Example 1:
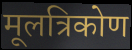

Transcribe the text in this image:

मूलत्रिकोण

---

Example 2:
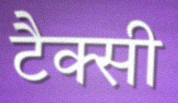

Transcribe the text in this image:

टैक्‍सी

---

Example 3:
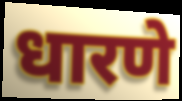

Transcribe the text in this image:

धारणे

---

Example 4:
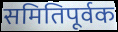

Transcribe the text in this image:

समितिपूर्वक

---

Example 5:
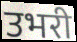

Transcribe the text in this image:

उभरी